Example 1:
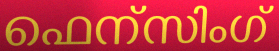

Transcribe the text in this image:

ഫെന്സിംഗ്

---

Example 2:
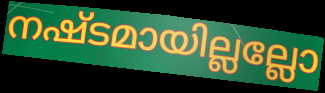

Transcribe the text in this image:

നഷ്ടമായില്ലല്ലോ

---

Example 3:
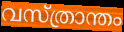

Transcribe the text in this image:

വസ്ത്രാന്തം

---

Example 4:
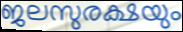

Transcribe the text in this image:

ജലസുരക്ഷയും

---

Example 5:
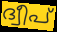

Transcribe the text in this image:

ദ്വീപ്